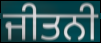
ਜੀਤਨੀ